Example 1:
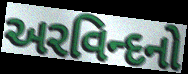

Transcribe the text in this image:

અરવિન્દનો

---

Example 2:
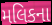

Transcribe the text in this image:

મલિકના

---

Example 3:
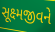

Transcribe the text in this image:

સૂક્ષ્મજીવને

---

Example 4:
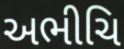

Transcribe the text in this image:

અભીચિ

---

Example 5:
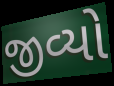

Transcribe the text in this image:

જીવ્યો